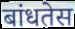
बांधतेस